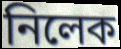
নিলেক